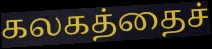
கலகத்தைச்